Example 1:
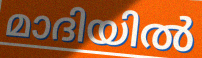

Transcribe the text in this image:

മാദിയിൽ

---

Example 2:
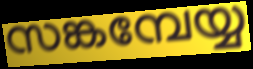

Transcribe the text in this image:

സങ്കമ്പേയ്യ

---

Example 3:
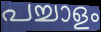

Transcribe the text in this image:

പച്ചാളം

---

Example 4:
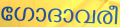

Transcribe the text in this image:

ഗോദാവരീ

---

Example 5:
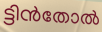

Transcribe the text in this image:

ട്ടിൻതോൽ